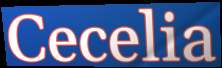
Cecelia